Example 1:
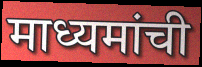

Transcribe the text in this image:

माध्यमांची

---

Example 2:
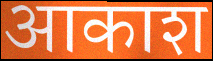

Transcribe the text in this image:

आकाश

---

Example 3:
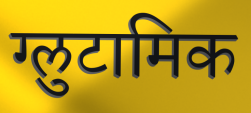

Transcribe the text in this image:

ग्लुटामिक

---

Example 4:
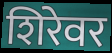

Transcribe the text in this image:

शिरेवर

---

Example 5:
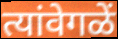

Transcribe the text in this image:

त्यांवेगळें